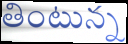
తింటున్న